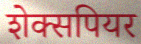
शेक्सपियर